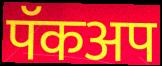
पॅकअप